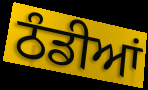
ਠੰਡੀਆਂ